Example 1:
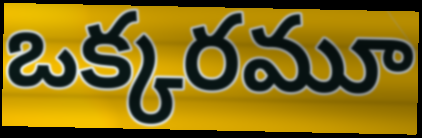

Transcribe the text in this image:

ఒక్కరమూ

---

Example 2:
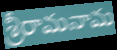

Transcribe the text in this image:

శ్రీరామనామ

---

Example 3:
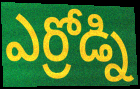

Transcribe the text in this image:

ఎర్రోడ్ని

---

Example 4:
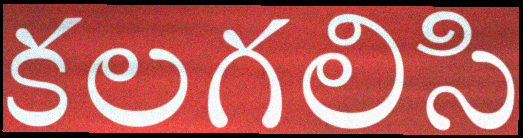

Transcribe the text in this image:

కలగలిసి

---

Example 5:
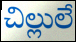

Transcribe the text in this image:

చిల్లులే